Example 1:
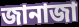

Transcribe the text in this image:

জানাজা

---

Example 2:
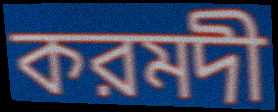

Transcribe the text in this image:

করমদী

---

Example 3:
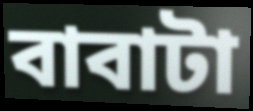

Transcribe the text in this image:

বাবাটা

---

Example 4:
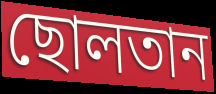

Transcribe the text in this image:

ছোলতান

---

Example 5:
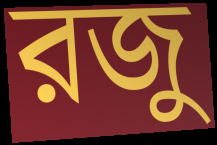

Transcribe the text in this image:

রজু